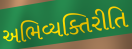
અભિવ્યક્તિરીતિ